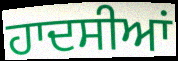
ਹਾਦਸੀਆਂ